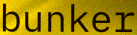
bunker